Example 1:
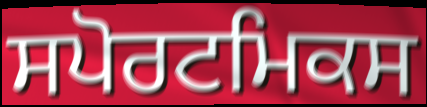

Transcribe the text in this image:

ਸਪੋਰਟਮਿਕਸ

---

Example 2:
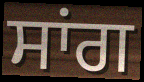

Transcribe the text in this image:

ਸਾਂਗ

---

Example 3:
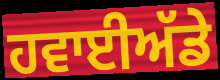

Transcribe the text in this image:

ਹਵਾਈਅੱਡੇ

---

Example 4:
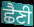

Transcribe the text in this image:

ਛੈਣੀ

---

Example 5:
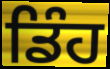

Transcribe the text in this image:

ਡਿੰਹ